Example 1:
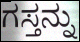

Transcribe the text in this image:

ಗಸ್ತನ್ನು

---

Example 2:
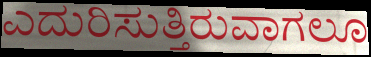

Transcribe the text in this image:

ಎದುರಿಸುತ್ತಿರುವಾಗಲೂ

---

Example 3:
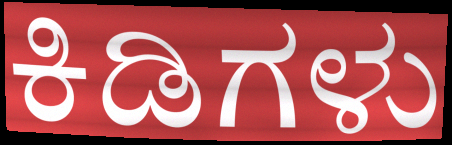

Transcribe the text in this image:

ಕಿಡಿಗಳು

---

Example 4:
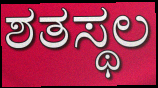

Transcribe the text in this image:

ಶತಸ್ಥಲ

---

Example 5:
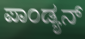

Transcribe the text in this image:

ಪಾಂಡ್ಯನ್